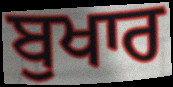
ਬੁਖਾਰ